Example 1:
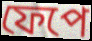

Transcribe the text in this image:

ফেপে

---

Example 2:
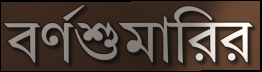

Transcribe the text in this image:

বর্ণশুমারির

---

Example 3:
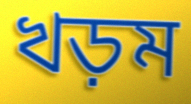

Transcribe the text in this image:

খড়ম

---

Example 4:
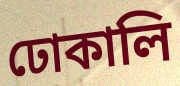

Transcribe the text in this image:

ঢোকালি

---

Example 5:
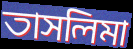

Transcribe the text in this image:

তাসলিমা